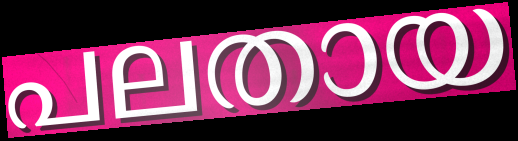
പലതായ